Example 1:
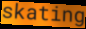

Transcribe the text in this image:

skating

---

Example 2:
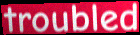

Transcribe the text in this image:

troubled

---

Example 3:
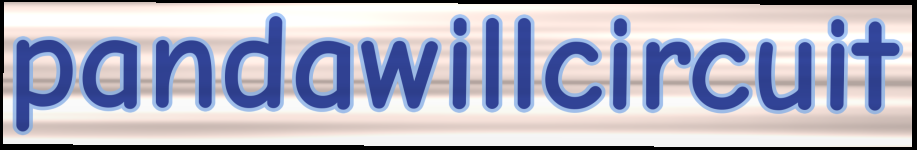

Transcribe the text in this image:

pandawillcircuit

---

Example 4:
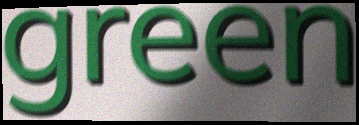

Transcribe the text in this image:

green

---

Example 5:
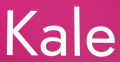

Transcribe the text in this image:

Kale